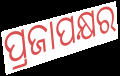
ପ୍ରଜାପକ୍ଷର